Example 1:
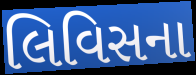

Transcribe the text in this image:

લિવિસના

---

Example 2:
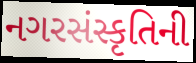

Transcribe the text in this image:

નગરસંસ્કૃતિની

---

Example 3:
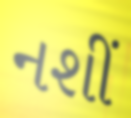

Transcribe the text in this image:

નશીં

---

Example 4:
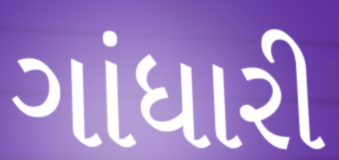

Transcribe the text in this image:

ગાંધારી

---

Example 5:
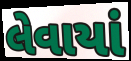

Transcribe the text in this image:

લેવાયાં